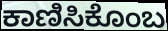
ಕಾಣಿಸಿಕೊಂಬ